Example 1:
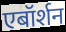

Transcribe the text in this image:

एबॉर्शन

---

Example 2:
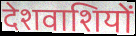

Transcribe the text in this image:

देशवाशियों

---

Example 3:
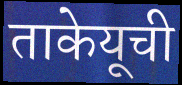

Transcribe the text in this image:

ताकेयूची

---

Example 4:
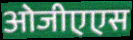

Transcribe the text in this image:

ओजीएएस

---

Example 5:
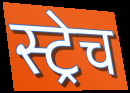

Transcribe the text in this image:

स्ट्रेच